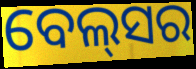
ବେଲ୍‌ସର